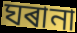
ঘৰানা